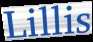
Lillis